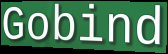
Gobind